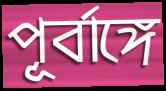
পূর্বাঙ্গে